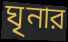
ঘৃনার